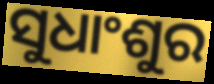
ସୁଧାଂଶୁର